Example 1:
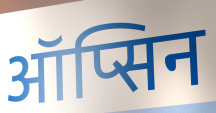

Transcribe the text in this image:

ऑप्सिन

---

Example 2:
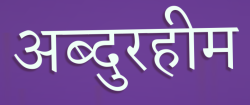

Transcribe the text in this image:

अब्दुरहीम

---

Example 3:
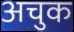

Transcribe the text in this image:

अचुक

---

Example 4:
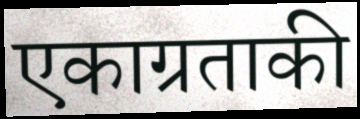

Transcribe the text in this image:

एकाग्रताकी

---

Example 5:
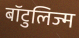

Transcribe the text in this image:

बॉटुलिज्म